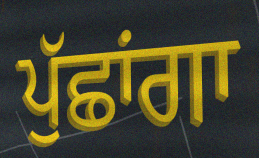
ਪੁੱਛਾਂਗਾ